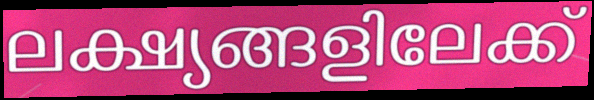
ലക്ഷ്യങ്ങളിലേക്ക്